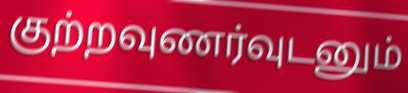
குற்றவுணர்வுடனும்